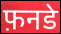
फ़नडे